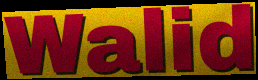
Walid